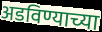
अडविण्याच्या